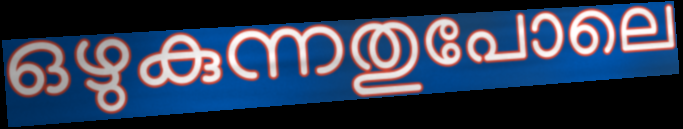
ഒഴുകുന്നതുപോലെ